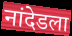
नांदेडला